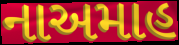
નાઅમાહ